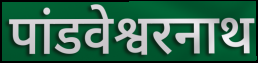
पांडवेश्वरनाथ